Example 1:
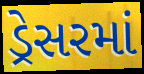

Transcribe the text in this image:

ડ્રેસરમાં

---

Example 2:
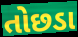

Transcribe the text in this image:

તોછડા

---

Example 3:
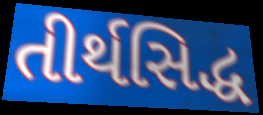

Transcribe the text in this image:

તીર્થસિદ્ધ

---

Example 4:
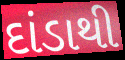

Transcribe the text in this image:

દાંડાથી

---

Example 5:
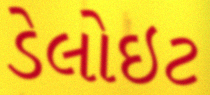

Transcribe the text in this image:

ડેલોઇટ